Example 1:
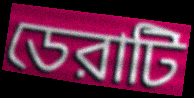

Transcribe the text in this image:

ডেরাটি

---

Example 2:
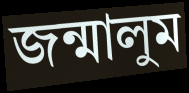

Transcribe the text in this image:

জন্মালুম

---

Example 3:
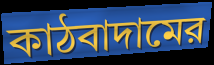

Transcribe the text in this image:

কাঠবাদামের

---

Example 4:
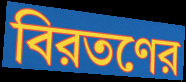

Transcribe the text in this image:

বিরতণের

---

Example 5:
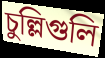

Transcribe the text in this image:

চুল্লিগুলি